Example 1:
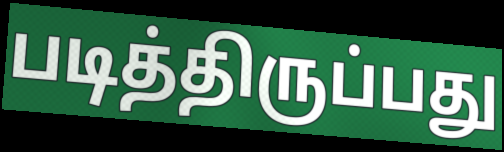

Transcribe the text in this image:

படித்திருப்பது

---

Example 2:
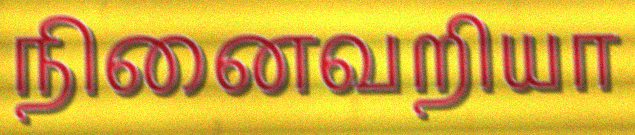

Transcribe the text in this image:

நினைவறியா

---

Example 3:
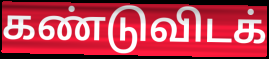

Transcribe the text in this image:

கண்டுவிடக்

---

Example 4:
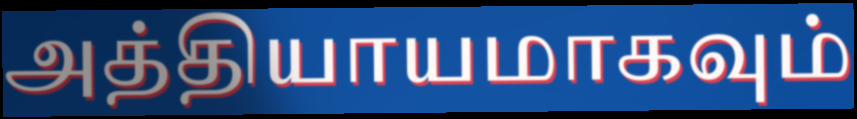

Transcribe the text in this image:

அத்தியாயமாகவும்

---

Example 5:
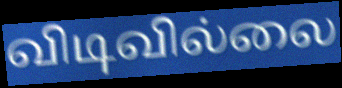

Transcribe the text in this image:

விடிவில்லை